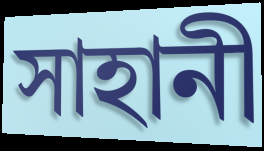
সাহানী